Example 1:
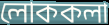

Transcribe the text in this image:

লোককলা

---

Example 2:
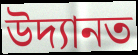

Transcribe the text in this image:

উদ্যানত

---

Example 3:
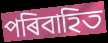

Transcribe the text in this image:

পৰিবাহিত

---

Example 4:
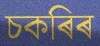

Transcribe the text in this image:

চকৰিৰ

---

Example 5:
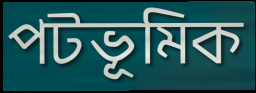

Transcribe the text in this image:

পটভূমিক